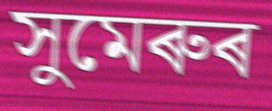
সুমেৰুৰ